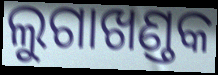
ଲୁଗାଖଣ୍ଡକ